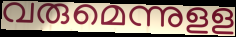
വരുമെന്നുളള